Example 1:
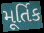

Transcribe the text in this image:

મૂર્તિક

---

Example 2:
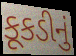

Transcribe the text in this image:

કૂકડીનું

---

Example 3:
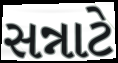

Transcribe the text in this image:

સન્નાટે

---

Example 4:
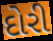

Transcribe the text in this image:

દોરી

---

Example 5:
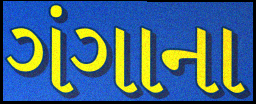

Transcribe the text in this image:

ગંગાના